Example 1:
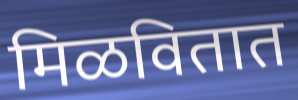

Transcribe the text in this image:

मिळवितात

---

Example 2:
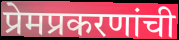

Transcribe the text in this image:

प्रेमप्रकरणांची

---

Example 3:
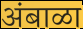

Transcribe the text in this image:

अंबाळा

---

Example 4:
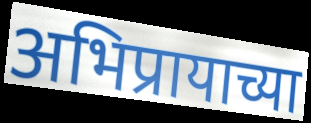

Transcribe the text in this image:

अभिप्रायाच्या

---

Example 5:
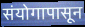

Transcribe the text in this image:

संयोगापासून